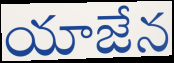
యాజేన